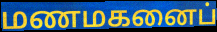
மணமகனைப்